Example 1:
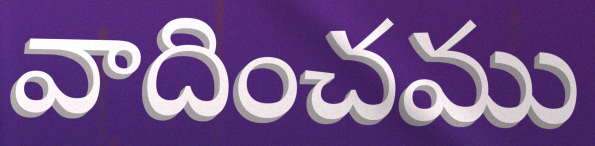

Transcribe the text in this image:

వాదించము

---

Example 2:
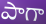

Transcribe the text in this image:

పాగా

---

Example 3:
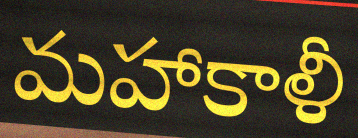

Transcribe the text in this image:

మహాకాళీ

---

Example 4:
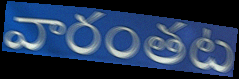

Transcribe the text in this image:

వారంతట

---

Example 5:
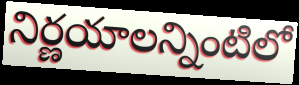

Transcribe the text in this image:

నిర్ణయాలన్నింటిలో